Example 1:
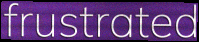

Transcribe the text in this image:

frustrated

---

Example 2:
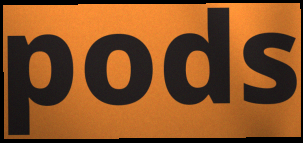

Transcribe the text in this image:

pods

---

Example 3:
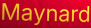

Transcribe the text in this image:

Maynard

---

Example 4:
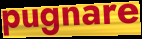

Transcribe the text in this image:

pugnare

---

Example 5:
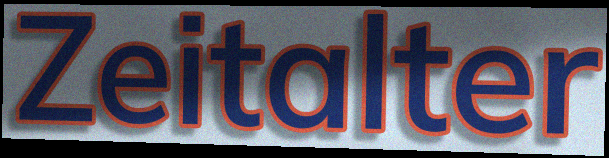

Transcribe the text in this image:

Zeitalter